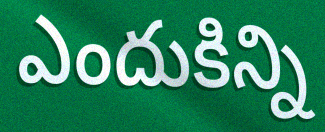
ఎందుకిన్ని